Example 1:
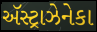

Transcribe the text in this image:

ઍસ્ટ્રાઝેનેકા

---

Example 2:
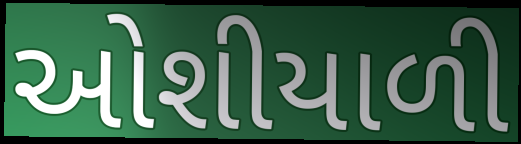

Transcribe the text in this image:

ઓશીયાળી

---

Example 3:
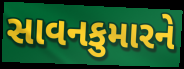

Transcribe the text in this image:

સાવનકુમારને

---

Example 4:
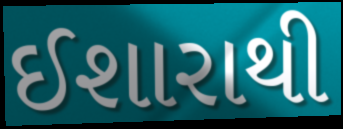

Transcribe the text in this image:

ઈશારાથી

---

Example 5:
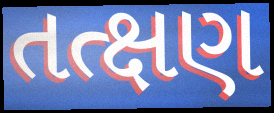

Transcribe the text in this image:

તત્ક્ષણ